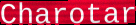
Charotar